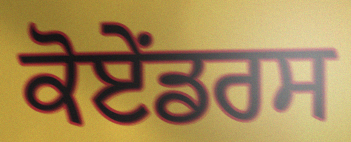
ਕੋਏਂਡਰਸ